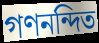
গণনন্দিত